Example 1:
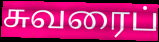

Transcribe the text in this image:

சுவரைப்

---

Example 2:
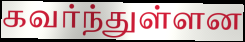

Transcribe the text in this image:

கவர்ந்துள்ளன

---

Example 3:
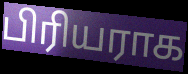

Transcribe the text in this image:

பிரியராக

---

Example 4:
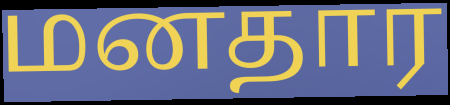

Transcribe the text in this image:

மனதார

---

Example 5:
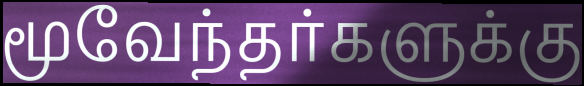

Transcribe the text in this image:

மூவேந்தர்களுக்கு